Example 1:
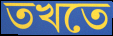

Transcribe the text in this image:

তখতে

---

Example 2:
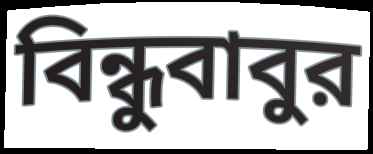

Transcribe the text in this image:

বিন্ধুবাবুর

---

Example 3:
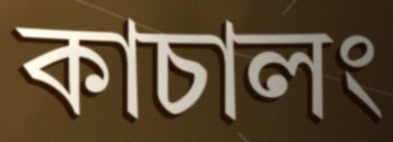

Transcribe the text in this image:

কাচালং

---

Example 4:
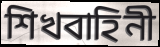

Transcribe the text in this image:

শিখবাহিনী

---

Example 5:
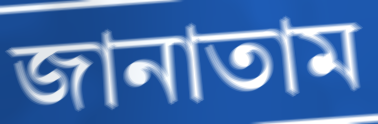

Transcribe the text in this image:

জানাতাম